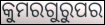
କୁମରଗୁରୁପର